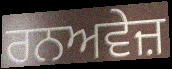
ਰਨਅਵੇਜ਼